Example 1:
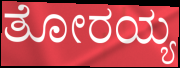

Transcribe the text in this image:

ತೋರಯ್ಯ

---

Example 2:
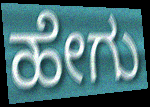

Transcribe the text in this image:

ಹೇಗು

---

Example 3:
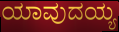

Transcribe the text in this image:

ಯಾವುದಯ್ಯ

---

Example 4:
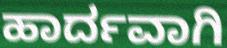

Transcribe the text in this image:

ಹಾರ್ದವಾಗಿ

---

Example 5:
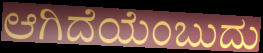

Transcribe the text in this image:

ಆಗಿದೆಯೆಂಬುದು